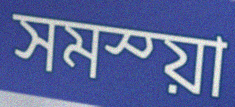
সমস্য়া